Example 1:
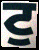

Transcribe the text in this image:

ਟੁ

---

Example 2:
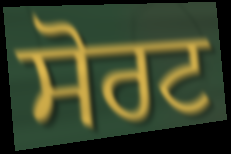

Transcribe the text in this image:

ਸੋਰਟ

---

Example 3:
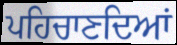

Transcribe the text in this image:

ਪਹਿਚਾਣਦਿਆਂ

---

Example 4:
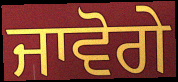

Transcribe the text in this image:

ਜਾਵੋਗੇ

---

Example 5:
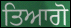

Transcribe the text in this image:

ਤਿਆਗੋ